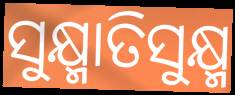
ସୁକ୍ଷ୍ମାତିସୁକ୍ଷ୍ମ